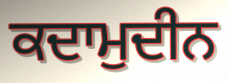
ਕਦਾਮੁਦੀਨ